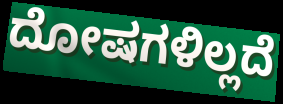
ದೋಷಗಳಿಲ್ಲದೆ